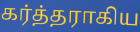
கர்த்தராகிய